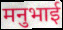
मनुभाई